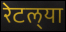
रेटल्या